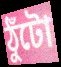
ঠুঁটো